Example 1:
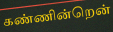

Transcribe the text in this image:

கண்ணின்றென்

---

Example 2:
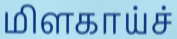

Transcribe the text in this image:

மிளகாய்ச்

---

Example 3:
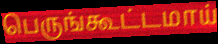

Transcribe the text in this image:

பெருங்கூட்டமாய்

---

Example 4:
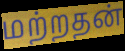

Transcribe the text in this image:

மற்றதன்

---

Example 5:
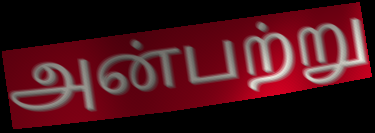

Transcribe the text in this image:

அன்பற்று